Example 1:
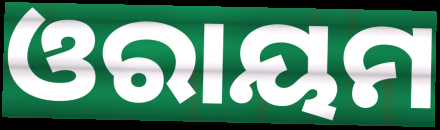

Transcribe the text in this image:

ଓରାୟମ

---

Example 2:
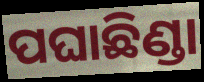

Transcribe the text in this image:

ପଘାଛିଣ୍ଡା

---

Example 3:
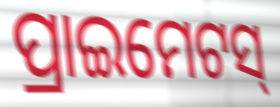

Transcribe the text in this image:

ପ୍ରାଇମେଟସ୍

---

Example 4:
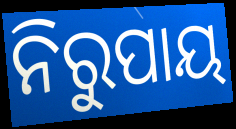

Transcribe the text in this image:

ନିରୁପାୟ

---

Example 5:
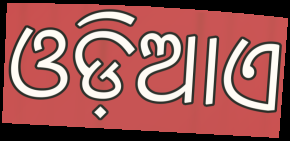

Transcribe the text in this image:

ଓଡ଼ିଆଏ